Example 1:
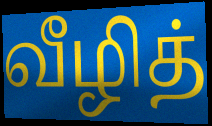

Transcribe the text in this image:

வீழித்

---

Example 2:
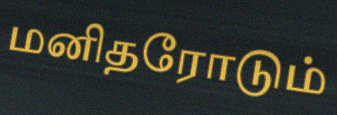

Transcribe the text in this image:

மனிதரோடும்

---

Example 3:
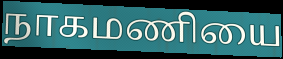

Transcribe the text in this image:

நாகமணியை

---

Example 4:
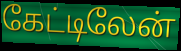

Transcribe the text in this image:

கேட்டிலேன்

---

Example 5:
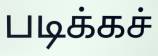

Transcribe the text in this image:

படிக்கச்